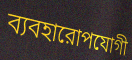
ব্যবহারোপযোগী